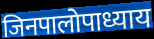
जिनपालोपाध्याय